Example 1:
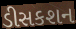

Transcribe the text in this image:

ડીસકશન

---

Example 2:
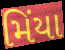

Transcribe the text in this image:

મિંયા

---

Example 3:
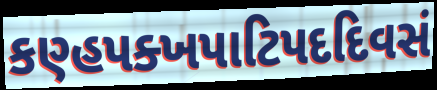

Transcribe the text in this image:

કણ્હપક્ખપાટિપદદિવસં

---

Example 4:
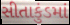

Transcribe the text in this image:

સીતાકુંડમાં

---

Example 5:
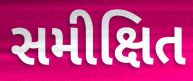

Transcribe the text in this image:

સમીક્ષિત